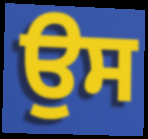
ਉਸ